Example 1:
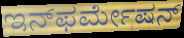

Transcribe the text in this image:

ಇನ್‌ಫರ್ಮೇಷನ್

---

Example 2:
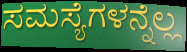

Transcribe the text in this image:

ಸಮಸ್ಯೆಗಳನ್ನೆಲ್ಲ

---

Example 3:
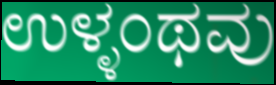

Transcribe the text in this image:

ಉಳ್ಳಂಥವು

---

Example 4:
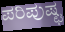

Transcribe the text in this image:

ಪರಿಪುಷ್ಟ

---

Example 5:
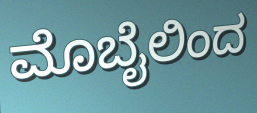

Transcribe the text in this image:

ಮೊಬೈಲಿಂದ